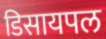
डिसायपल